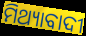
ମିଥ୍ୟାବାଦୀ